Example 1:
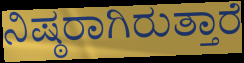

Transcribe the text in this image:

ನಿಷ್ಠರಾಗಿರುತ್ತಾರೆ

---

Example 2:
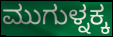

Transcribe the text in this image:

ಮುಗುಳ್ನಕ್ಕ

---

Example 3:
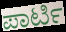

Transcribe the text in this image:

ಪಾರ್ಟಿ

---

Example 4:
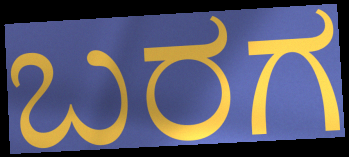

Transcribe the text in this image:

ಬರಗ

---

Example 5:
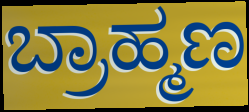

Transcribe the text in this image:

ಬ್ರಾಹ್ಮಣ